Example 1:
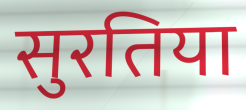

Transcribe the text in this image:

सुरतिया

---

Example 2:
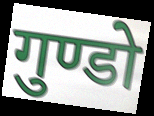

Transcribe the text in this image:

गुण्डो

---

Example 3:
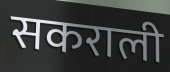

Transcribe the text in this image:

सकराली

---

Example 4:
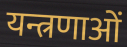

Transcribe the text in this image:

यन्त्रणाओं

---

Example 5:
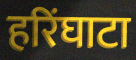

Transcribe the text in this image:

हरिंघाटा